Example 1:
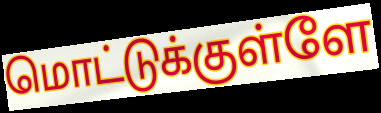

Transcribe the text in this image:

மொட்டுக்குள்ளே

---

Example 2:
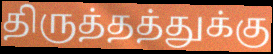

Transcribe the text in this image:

திருத்தத்துக்கு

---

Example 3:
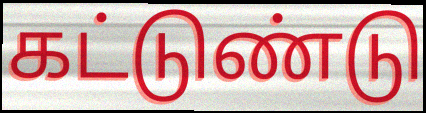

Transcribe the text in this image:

கட்டுண்டு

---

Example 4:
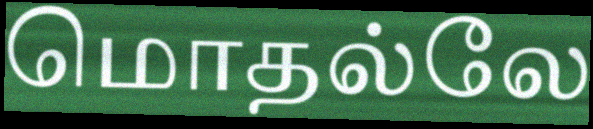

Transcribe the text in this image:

மொதல்லே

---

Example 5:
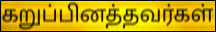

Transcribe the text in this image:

கறுப்பினத்தவர்கள்